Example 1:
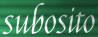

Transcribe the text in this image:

subosito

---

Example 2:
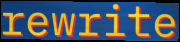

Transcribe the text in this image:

rewrite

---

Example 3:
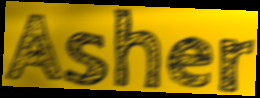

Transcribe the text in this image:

Asher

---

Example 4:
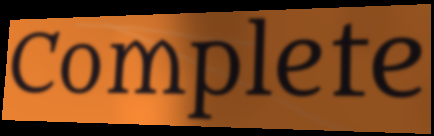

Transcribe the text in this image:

Complete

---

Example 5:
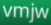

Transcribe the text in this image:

vmjw